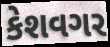
કેશવગર